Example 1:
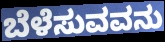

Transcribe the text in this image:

ಬೆಳೆಸುವವನು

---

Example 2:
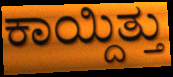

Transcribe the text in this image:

ಕಾಯ್ದಿತ್ತು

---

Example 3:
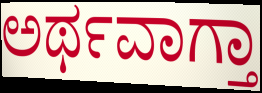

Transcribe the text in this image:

ಅರ್ಥವಾಗ್ತಾ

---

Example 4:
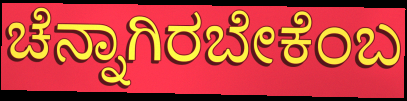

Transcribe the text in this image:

ಚೆನ್ನಾಗಿರಬೇಕೆಂಬ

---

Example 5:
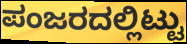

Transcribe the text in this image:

ಪಂಜರದಲ್ಲಿಟ್ಟು